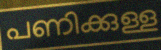
പണിക്കുള്ള